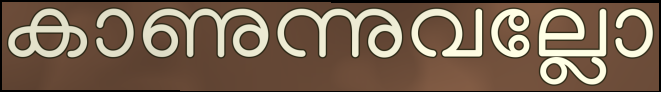
കാണുന്നുവല്ലോ